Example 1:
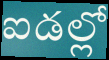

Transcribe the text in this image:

ఐడల్లో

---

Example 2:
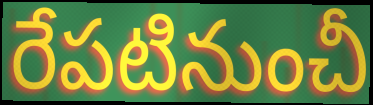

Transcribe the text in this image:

రేపటినుంచీ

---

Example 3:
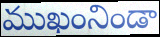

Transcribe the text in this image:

ముఖంనిండా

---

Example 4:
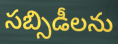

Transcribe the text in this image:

సబ్సిడీలను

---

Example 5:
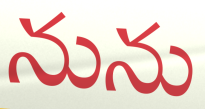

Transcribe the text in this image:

నును